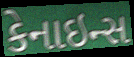
કેનાઇન્સ